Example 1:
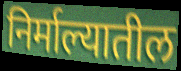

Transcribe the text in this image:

निर्माल्यातील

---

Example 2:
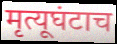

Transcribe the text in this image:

मृत्यूघंटाच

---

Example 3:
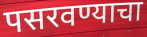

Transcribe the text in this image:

पसरवण्याचा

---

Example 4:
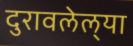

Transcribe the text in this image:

दुरावलेल्या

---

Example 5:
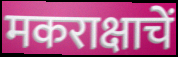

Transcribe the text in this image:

मकराक्षाचें